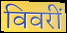
विवरीं